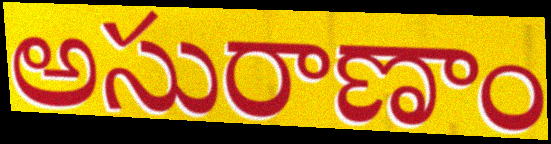
అసురాణాం